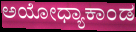
ಅಯೋಧ್ಯಾಕಾಂಡ